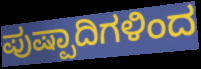
ಪುಷ್ಪಾದಿಗಳಿಂದ